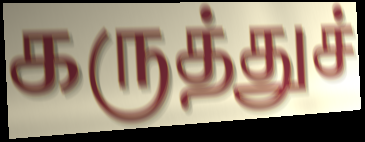
கருத்துச்